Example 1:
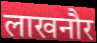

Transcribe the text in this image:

लाखनौर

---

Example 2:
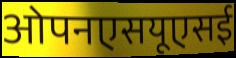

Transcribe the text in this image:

ओपनएसयूएसई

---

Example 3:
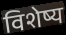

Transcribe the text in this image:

विशेष्य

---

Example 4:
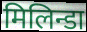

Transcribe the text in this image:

मिलिन्डा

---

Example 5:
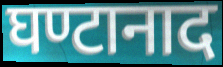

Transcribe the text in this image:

घण्टानाद